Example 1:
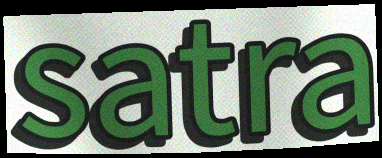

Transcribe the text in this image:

satra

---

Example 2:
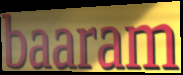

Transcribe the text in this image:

baaram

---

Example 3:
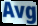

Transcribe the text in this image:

Avg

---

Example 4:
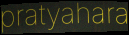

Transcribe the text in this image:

pratyahara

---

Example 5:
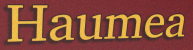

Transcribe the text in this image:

Haumea